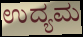
ಉದ್ಯಮ